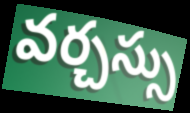
వర్చస్సు